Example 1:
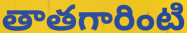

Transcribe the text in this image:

తాతగారింటి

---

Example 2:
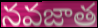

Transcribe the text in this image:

నవజాత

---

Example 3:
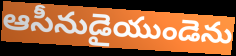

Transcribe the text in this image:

ఆసీనుడైయుండెను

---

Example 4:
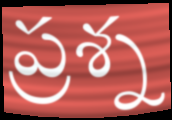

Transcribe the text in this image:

ప్రశ్న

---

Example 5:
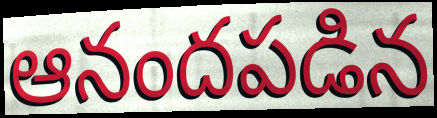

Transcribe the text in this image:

ఆనందపడిన